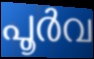
പൂർവ